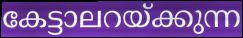
കേട്ടാലറയ്ക്കുന്ന